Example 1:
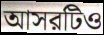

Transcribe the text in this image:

আসরটিও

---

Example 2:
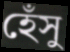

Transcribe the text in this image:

হেঁসু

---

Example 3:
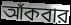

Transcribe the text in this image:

আঁকবার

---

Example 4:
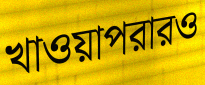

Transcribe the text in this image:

খাওয়াপরারও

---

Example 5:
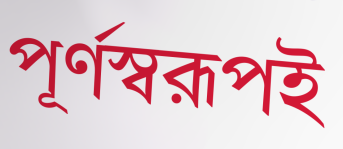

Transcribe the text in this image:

পূর্ণস্বরূপই